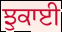
ਝੁਕਾਈ